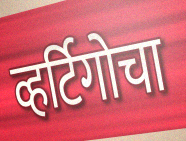
व्हर्टिगोचा